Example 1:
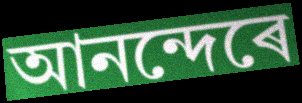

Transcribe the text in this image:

আনন্দেৰে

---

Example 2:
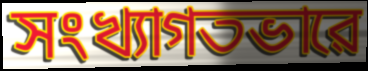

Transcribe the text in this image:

সংখ্যাগতভাৱে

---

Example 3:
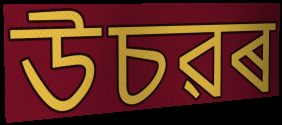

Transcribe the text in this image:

উচৱৰ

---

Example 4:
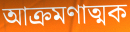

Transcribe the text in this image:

আক্ৰমণাত্মক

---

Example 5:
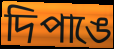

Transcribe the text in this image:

দিপাঙে